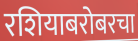
रशियाबरोबरचा